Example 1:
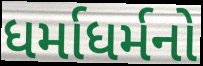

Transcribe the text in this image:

ધર્માધર્મનો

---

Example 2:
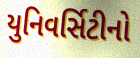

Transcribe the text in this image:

યુનિવર્સિટીનો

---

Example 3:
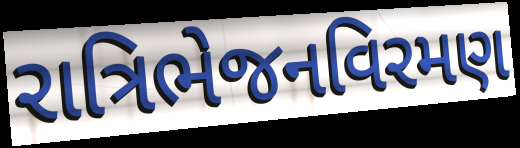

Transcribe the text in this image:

રાત્રિભેજનવિરમણ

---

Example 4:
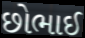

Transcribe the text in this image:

છોભાઈ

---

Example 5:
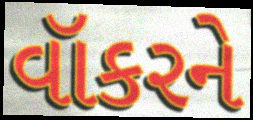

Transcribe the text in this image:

વૉકરને